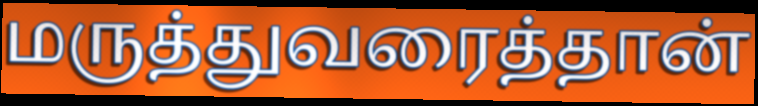
மருத்துவரைத்தான்